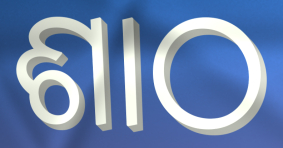
ଶାଠ